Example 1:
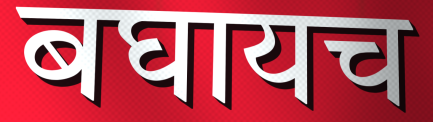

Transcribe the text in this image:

बघायच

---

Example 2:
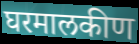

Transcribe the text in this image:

घरमालकीण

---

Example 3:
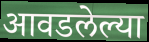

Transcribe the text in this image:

आवडलेल्या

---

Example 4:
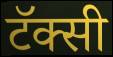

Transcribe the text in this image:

टॅक्सी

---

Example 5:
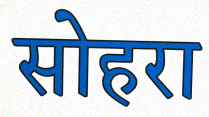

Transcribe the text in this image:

सोहरा